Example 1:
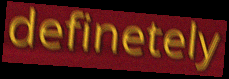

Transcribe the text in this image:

definetely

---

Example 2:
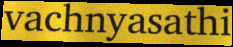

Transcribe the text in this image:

vachnyasathi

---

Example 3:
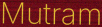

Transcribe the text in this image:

Mutram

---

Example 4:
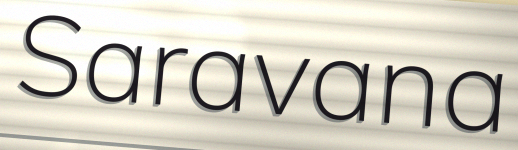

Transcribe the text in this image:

Saravana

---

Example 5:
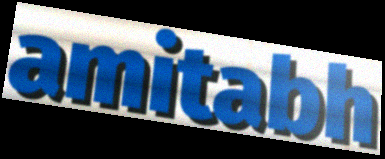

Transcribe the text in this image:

amitabh